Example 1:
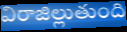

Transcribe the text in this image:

విరాజిల్లుతుంది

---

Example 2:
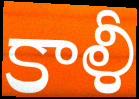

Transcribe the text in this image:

కాళీ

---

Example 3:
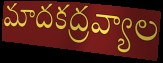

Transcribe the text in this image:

మాదకద్రవ్యాల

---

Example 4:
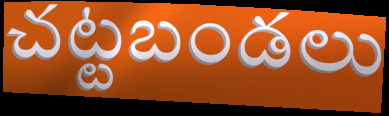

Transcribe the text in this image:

చట్టబండలు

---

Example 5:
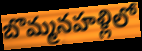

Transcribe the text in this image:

బొమ్మనహళ్లిలో